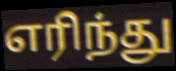
எரிந்து